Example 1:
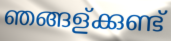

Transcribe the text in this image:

ഞങ്ങള്ക്കുണ്ട്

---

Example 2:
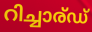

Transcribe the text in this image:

റിച്ചാര്ഡ്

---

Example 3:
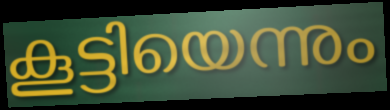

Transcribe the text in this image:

കൂട്ടിയെന്നും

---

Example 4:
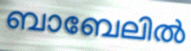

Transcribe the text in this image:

ബാബേലിൽ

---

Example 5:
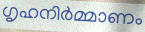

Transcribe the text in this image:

ഗൃഹനിർമ്മാണം